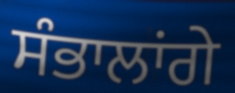
ਸੰਭਾਲਾਂਗੇ